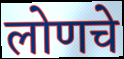
लोणचे